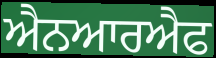
ਐਨਆਰਐਫ